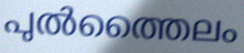
പുൽത്തൈലം